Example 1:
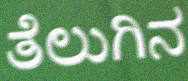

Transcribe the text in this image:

ತೆಲುಗಿನ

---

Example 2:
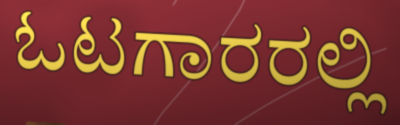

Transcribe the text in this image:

ಓಟಗಾರರಲ್ಲಿ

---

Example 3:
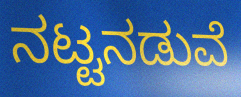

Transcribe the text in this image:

ನಟ್ಟನಡುವೆ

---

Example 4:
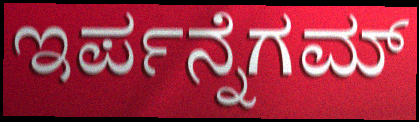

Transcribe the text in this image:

ಇರ್ಪನ್ನೆಗಮ್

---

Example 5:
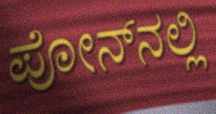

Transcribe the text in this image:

ಪೋನ್‍ನಲ್ಲಿ